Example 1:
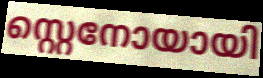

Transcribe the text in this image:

സ്റ്റെനോയായി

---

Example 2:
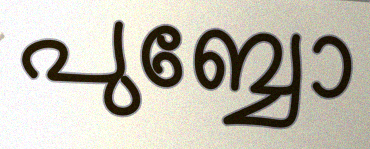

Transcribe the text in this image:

പുബ്ബോ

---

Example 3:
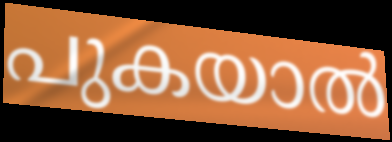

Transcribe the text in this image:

പുകയാൽ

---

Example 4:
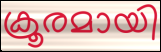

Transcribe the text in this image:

ക്രൂരമായി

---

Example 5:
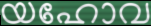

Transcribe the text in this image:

യഹോവ